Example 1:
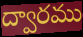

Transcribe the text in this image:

ద్వారము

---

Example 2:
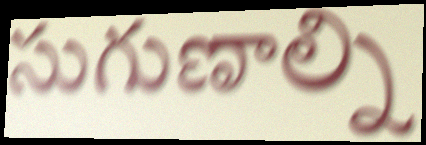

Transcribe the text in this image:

సుగుణాల్ని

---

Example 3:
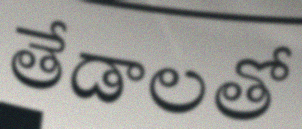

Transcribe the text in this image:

తేడాలతో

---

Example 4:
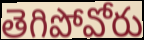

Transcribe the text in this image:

తెగిపోవోరు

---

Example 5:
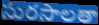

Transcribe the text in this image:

సురసాలతా